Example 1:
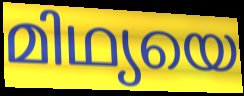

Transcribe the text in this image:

മിഥ്യയെ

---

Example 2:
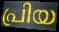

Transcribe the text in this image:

പ്രിയ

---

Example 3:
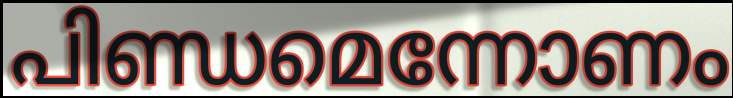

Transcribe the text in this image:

പിണ്ഡമെന്നോണം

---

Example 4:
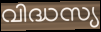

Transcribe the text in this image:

വിദ്ധസ്യ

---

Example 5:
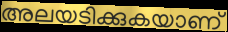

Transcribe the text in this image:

അലയടിക്കുകയാണ്